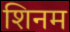
शिनम